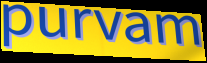
purvam